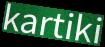
kartiki